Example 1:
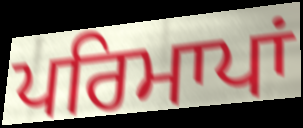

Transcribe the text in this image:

ਪਰਿਮਾਪਾਂ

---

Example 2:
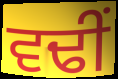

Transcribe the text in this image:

ਵਢੀਂ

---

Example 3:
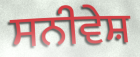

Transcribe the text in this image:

ਸਨੀਵੇਸ਼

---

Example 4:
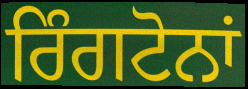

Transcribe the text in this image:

ਰਿੰਗਟੋਨਾਂ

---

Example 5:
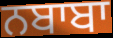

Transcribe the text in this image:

ਨਬਾਬਾ